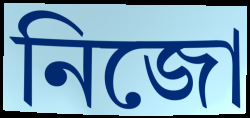
নিজো